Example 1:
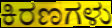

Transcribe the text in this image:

ಕಿರಣಗಳು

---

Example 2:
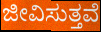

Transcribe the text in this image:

ಜೀವಿಸುತ್ತವೆ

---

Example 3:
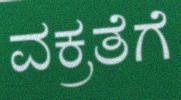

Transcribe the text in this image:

ವಕ್ರತೆಗೆ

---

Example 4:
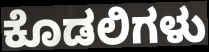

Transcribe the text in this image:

ಕೊಡಲಿಗಳು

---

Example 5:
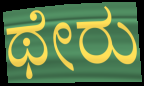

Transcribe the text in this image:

ಥೇರು